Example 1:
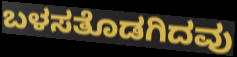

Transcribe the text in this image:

ಬಳಸತೊಡಗಿದವು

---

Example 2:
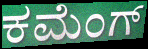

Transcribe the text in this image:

ಕಮೆಂಗ್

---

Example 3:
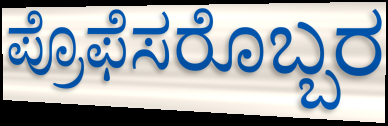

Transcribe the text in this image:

ಪ್ರೊಫೆಸರೊಬ್ಬರ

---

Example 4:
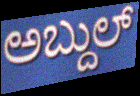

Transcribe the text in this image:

ಅಬ್ದುಲ್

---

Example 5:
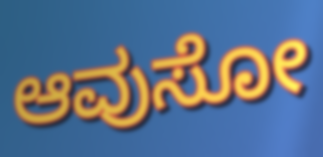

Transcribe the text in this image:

ಆವುಸೋ